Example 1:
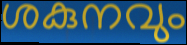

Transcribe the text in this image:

ശകുനവും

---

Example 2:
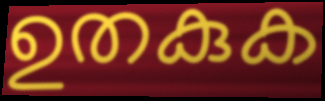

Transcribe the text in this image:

ഉതകുക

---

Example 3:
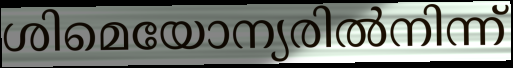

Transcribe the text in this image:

ശിമെയോന്യരിൽനിന്ന്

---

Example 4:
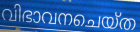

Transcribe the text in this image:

വിഭാവനചെയ്ത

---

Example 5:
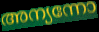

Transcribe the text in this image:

അന്യന്നോ